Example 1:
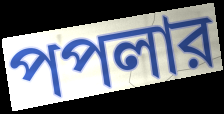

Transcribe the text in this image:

পপলার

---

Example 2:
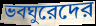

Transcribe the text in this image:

ভবঘুরেদের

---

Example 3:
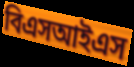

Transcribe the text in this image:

বিএসআইএস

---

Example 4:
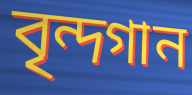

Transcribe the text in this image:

বৃন্দগান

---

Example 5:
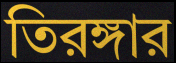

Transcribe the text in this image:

তিরঙ্গার